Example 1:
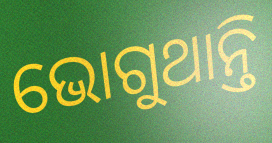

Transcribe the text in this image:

ଭୋଗୁଥାନ୍ତି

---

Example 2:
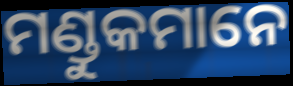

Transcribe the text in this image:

ମଣ୍ଡୁକମାନେ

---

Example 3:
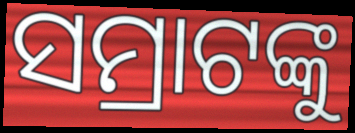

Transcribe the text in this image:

ସମ୍ରାଟଙ୍କୁ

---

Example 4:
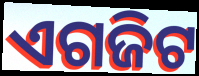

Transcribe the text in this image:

ଏଗଜିଟ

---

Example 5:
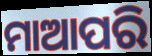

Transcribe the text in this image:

ମାଆପରି